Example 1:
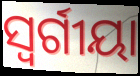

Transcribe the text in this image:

ସ୍ବର୍ଗୀୟା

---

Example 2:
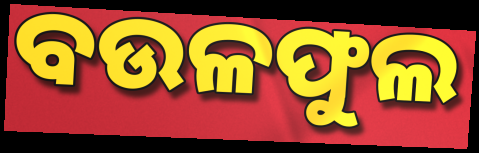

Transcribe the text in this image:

ବଉଳଫୁଲ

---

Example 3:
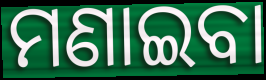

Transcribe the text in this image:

ମଣାଇବା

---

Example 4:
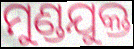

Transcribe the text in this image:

ମୁଣ୍ଡଯୁକ୍ତ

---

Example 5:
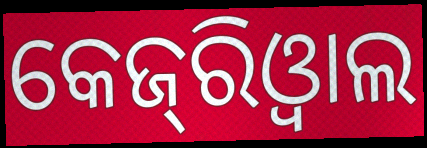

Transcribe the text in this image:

କେଜ୍‌ରିଓ୍ବାଲ